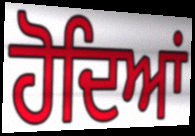
ਹੋਦਿਆਂ